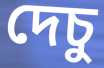
দেচু